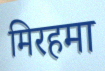
मिरहमा